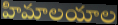
హిమాలయాల